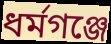
ধর্মগঞ্জে